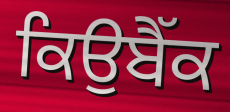
ਕਿਉਬੈੱਕ